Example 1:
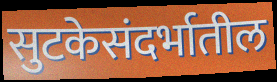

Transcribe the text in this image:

सुटकेसंदर्भातील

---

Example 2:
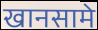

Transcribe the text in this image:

खानसामे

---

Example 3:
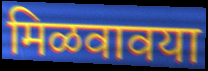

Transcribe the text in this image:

मिळवावया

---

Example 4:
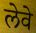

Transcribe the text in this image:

लेवे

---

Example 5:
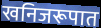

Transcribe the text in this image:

खनिजरूपात